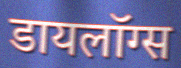
डायलॉग्स